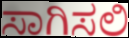
ಸಾಗಿಸಲಿ